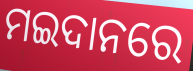
ମଇଦାନରେ